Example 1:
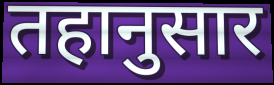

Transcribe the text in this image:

तहानुसार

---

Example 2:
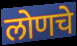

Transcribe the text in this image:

लोणचे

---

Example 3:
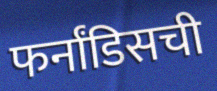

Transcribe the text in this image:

फर्नांडिसची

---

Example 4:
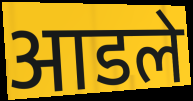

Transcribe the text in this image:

आडले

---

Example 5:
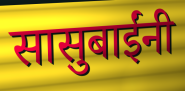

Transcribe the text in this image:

सासुबाईंनी